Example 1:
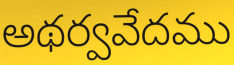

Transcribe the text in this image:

అథర్వవేదము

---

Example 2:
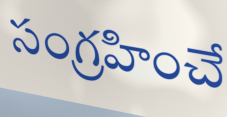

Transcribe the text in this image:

సంగ్రహించే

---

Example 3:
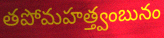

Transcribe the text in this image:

తపోమహత్త్వంబునం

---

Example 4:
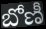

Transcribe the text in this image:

బోణీ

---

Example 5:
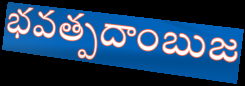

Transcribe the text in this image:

భవత్పదాంబుజ